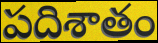
పదిశాతం